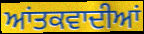
ਆਂਤਕਵਾਦੀਆਂ